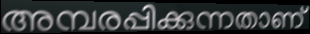
അമ്പരപ്പിക്കുന്നതാണ്